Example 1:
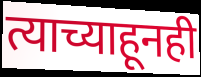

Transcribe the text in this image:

त्याच्याहूनही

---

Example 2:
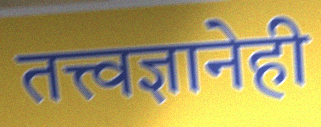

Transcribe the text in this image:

तत्त्वज्ञानेही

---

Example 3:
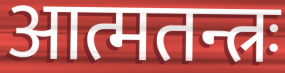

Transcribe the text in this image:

आत्मतन्त्रः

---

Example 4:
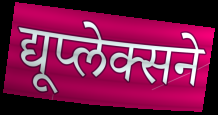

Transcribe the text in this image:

द्यूप्लेक्सने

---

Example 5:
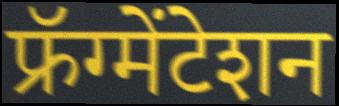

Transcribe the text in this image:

फ्रॅग्मेंटेशन